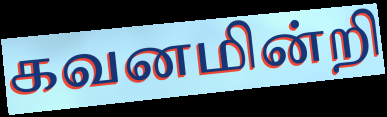
கவனமின்றி